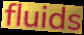
fluids